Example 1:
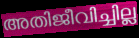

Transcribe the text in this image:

അതിജീവിച്ചില്ല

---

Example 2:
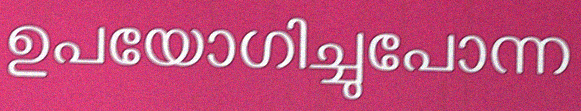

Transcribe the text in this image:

ഉപയോഗിച്ചുപോന്ന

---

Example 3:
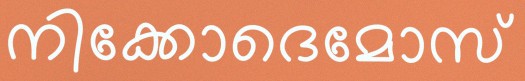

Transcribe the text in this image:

നിക്കോദെമോസ്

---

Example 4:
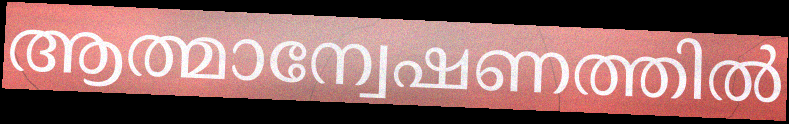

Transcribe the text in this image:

ആത്മാന്വേഷണത്തിൽ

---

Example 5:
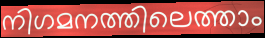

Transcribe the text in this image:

നിഗമനത്തിലെത്താം